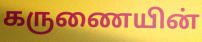
கருணையின்